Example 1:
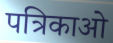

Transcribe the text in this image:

पत्रिकाओ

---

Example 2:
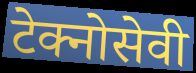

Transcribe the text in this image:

टेक्नोसेवी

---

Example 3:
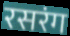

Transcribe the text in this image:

रसरंग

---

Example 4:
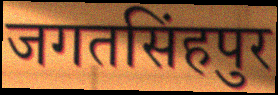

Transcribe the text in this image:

जगतसिंहपुर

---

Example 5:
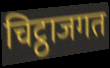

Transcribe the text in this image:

चिट्ठाजगत